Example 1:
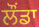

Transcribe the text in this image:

ਲੌਂਡਾ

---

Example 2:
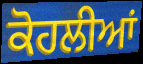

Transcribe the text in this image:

ਕੋਹਲੀਆਂ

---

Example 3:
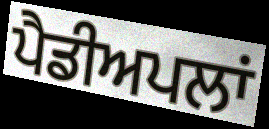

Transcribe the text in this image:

ਪੈਡੀਅਪਲਾਂ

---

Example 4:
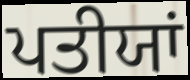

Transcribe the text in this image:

ਪਤੀਯਾਂ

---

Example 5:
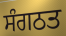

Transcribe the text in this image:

ਸੰਗਠਤ